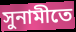
সুনামীতে